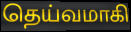
தெய்வமாகி